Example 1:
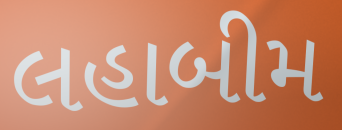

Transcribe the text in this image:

લહાબીમ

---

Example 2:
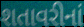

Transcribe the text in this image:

શતાવરીનાં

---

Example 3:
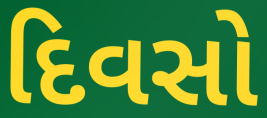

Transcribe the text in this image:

દિવસો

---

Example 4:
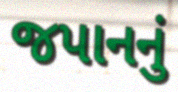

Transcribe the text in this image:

જપાનનું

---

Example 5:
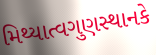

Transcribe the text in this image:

મિથ્યાત્વગુણસ્થાનકે